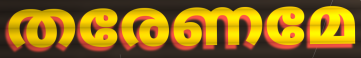
തരേണമേ